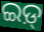
ଇଡ଼୍